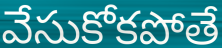
వేసుకోకపోతే